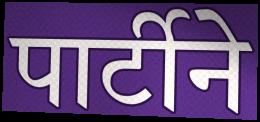
पार्टीने